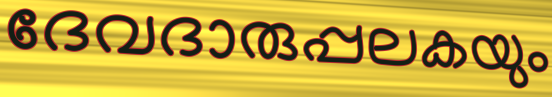
ദേവദാരുപ്പലകയും